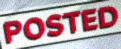
POSTED